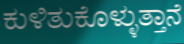
ಕುಳಿತುಕೊಳ್ಳುತ್ತಾನೆ